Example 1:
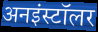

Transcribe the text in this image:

अनइंस्टॉलर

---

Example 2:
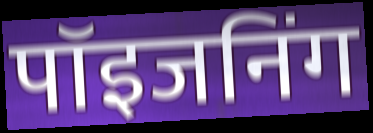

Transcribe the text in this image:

पॉइजनिंग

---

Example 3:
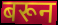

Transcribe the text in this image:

बरून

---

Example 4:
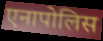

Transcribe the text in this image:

एनापोलिस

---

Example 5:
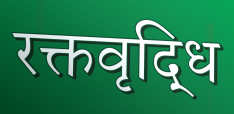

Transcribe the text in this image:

रक्तवृद्धि